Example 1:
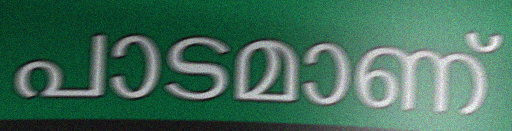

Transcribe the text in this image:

പാടമാണ്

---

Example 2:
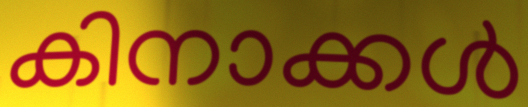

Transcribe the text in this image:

കിനാക്കൾ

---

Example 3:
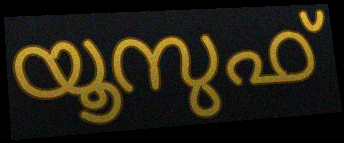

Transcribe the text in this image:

യൂസുഫ്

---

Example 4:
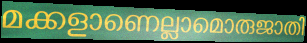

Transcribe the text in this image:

മക്കളാണെല്ലാമൊരുജാതി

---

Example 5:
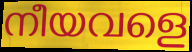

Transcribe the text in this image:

നീയവളെ